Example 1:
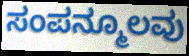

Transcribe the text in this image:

ಸಂಪನ್ಮೂಲವು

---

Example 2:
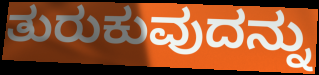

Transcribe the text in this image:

ತುರುಕುವುದನ್ನು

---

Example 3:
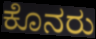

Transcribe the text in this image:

ಕೊನರು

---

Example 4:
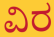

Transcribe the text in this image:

ವಿರ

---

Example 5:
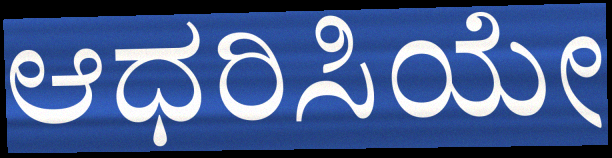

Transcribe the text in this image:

ಆಧರಿಸಿಯೇ